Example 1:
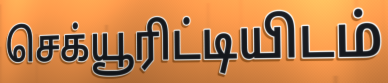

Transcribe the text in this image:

செக்யூரிட்டியிடம்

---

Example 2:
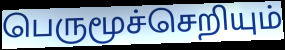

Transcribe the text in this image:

பெருமூச்செறியும்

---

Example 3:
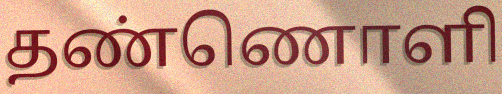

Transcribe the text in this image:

தண்ணொளி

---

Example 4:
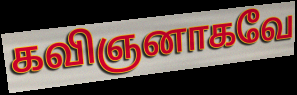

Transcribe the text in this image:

கவிஞனாகவே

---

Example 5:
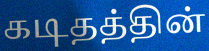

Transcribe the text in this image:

கடிதத்தின்